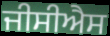
ਜੀਸੀਐਸ